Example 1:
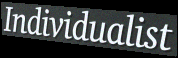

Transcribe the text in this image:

Individualist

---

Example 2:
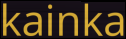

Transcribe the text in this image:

kainka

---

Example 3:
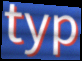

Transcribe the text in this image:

typ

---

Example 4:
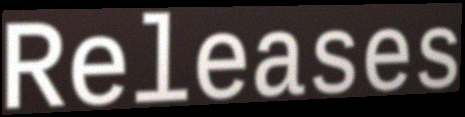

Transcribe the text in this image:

Releases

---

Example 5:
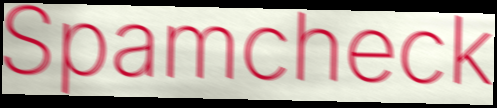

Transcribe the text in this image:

Spamcheck